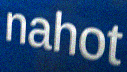
nahot